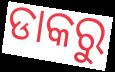
ଡାକରୁ